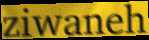
ziwaneh